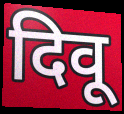
दिवू